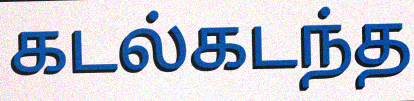
கடல்கடந்த